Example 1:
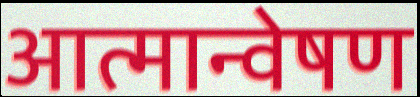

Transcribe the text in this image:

आत्मान्वेषण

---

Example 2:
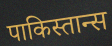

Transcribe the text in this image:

पाकिस्तान्स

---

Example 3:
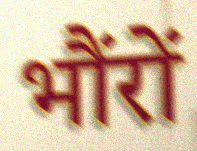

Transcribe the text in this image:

भौंरों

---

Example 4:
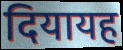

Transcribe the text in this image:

दियायह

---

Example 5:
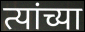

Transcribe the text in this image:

त्यांच्या